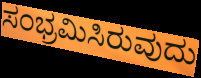
ಸಂಭ್ರಮಿಸಿರುವುದು